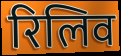
रिलिव